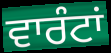
ਵਾਰੰਟਾਂ